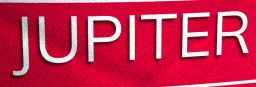
JUPITER